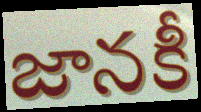
జానకీ